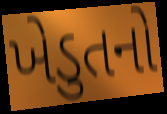
ખેડુતનો